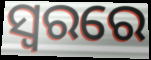
ସ୍ବରରେ